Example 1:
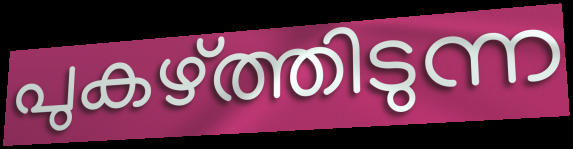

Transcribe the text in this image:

പുകഴ്ത്തിടുന്ന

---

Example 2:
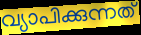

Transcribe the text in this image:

വ്യാപിക്കുന്നത്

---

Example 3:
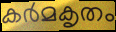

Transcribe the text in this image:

കർമകൃതം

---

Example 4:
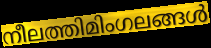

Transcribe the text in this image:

നീലത്തിമിംഗലങ്ങൾ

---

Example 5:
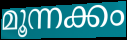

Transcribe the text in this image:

മൂന്നക്കം